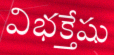
విభక్తేషు